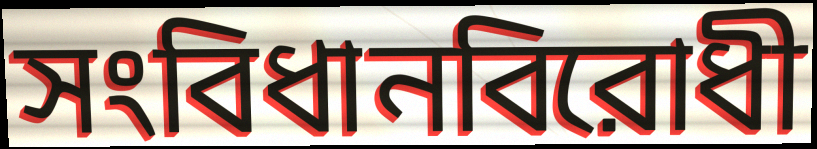
সংবিধানবিরোধী